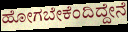
ಹೋಗಬೇಕೆಂದಿದ್ದೇನೆ